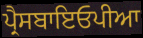
ਪ੍ਰੈਸਬਾਇਓਪੀਆ